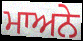
ਮਾਅਨੇ